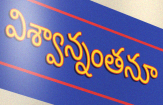
విశ్వాన్నంతనూ